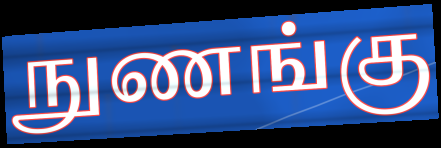
நுணங்கு